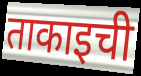
ताकाइची